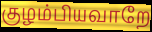
குழம்பியவாறே